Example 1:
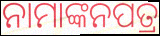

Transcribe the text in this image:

ନାମାଙ୍କନପତ୍ର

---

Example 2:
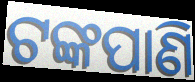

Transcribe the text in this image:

ଟଙ୍କପାଣି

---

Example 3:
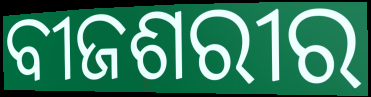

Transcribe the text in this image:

ବୀଜଶରୀର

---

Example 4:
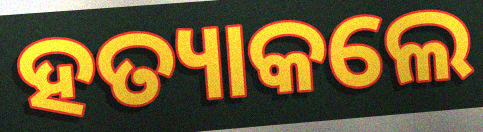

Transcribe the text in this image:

ହତ୍ୟାକଲେ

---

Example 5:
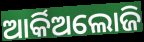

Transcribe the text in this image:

ଆର୍କିଅଲୋଜି